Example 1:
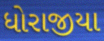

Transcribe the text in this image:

ધોરાજીયા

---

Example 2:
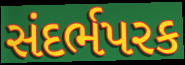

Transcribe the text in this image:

સંદર્ભપરક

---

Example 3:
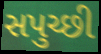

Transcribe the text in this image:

સપુચ્છી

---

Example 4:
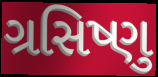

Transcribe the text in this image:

ગ્રસિષ્ણુ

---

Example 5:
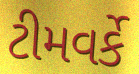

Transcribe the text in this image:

ટીમવર્કે